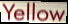
Yellow